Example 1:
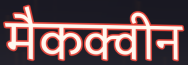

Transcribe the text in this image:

मैकक्वीन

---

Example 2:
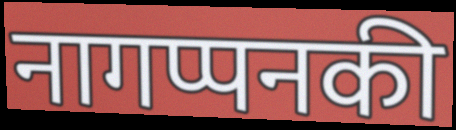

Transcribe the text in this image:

नागप्पनकी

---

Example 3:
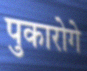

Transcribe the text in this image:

पुकारोगे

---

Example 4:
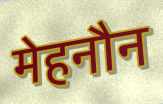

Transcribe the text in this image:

मेहनौन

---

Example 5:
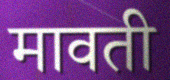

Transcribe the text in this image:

मावती